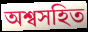
অশ্বসহিত